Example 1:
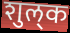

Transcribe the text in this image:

शुल्क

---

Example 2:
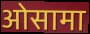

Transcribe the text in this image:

ओसामा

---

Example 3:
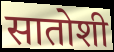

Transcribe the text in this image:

सातोशी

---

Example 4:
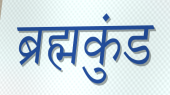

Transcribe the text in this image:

ब्रह्मकुंड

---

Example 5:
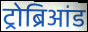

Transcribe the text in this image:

ट्रोब्रिआंड